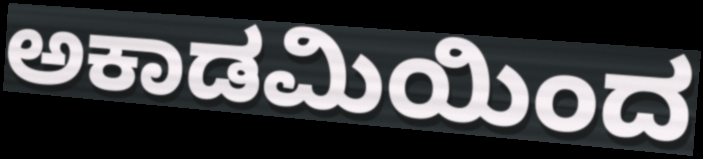
ಅಕಾಡಮಿಯಿಂದ